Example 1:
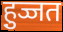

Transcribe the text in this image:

ह़ुज्जत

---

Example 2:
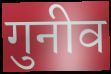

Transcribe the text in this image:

गुनीव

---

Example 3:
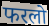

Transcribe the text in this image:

फरलो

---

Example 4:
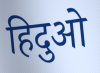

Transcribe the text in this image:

हिदुओ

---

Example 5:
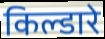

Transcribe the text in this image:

किल्डारे